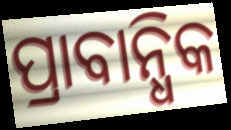
ପ୍ରାବାନ୍ଧିକ